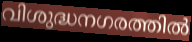
വിശുദ്ധനഗരത്തിൽ